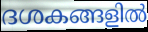
ദശകങ്ങളിൽ